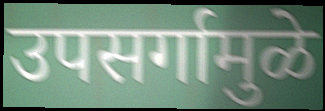
उपसर्गामुळे